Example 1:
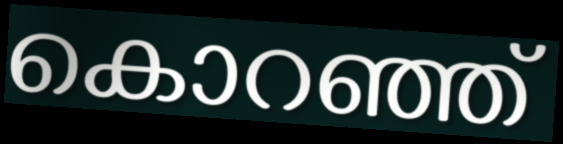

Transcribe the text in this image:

കൊറഞ്ഞ്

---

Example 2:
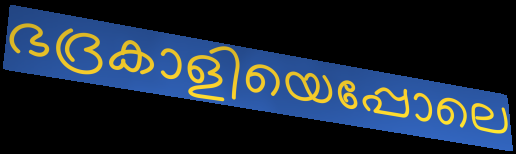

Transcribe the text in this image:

ഭദ്രകാളിയെപ്പോലെ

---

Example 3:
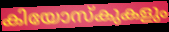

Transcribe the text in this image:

കിയോസ്കുകളും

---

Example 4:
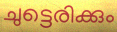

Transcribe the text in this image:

ചുട്ടെരിക്കും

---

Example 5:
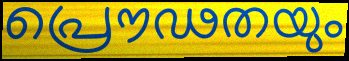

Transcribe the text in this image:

പ്രൌഢതയും